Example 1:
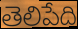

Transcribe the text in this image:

తెలిపేది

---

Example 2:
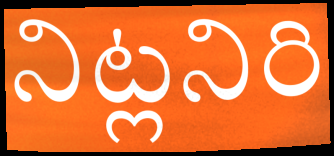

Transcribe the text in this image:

నిట్లనిరి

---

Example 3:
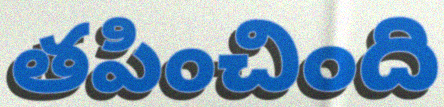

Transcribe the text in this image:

తపించింది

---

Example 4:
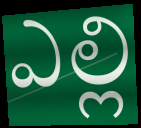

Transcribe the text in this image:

ఎల్లి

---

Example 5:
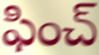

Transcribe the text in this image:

ఫించ్